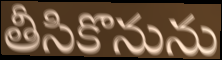
తీసికొనును